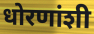
धोरणांशी